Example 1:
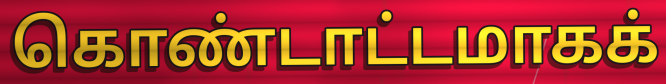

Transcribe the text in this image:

கொண்டாட்டமாகக்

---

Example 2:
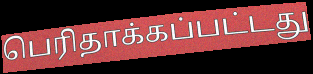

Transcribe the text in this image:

பெரிதாக்கப்பட்டது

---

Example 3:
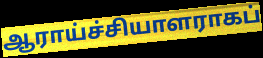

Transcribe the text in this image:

ஆராய்ச்சியாளராகப்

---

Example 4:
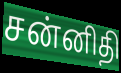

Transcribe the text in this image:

சன்னிதி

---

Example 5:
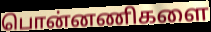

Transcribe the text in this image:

பொன்னணிகளை